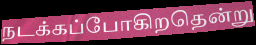
நடக்கப்போகிறதென்று